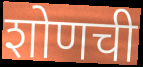
शोणची